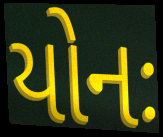
યોનઃ